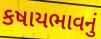
કષાયભાવનું